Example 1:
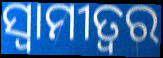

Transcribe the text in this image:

ସ୍ଵାମୀତ୍ୱର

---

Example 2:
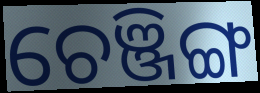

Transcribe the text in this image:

ଚେଞ୍ଜିଙ୍ଗ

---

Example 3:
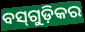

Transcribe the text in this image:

ବସ୍‌ଗୁଡ଼ିକର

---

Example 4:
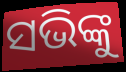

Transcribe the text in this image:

ସଭିଙ୍କୁ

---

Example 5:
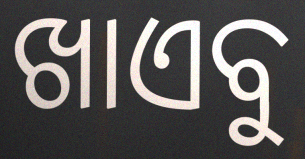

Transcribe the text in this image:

ଖାଏବୁ